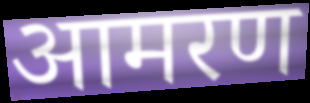
आमरण